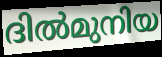
ദിൽമുനിയ